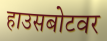
हाउसबोटवर